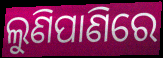
ଲୁଣିପାଣିରେ